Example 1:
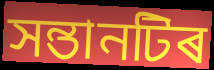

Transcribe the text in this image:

সন্তানটিৰ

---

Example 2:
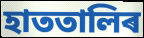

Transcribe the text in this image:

হাততালিৰ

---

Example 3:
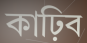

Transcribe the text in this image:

কাঢ়িব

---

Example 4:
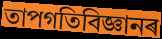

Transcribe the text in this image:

তাপগতিবিজ্ঞানৰ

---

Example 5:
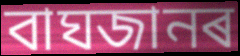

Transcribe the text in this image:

বাঘজানৰ